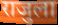
राजुला